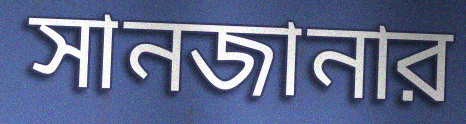
সানজানার